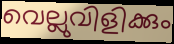
വെല്ലുവിളിക്കും